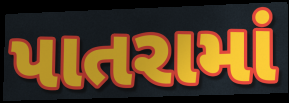
પાતરામાં